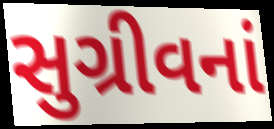
સુગ્રીવનાં